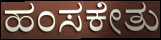
ಹಂಸಕೇತು